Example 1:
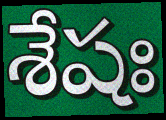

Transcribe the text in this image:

శేషః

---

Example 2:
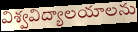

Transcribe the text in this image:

విశ్వవిద్యాలయాలను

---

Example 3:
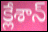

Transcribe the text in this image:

క్లేశాన్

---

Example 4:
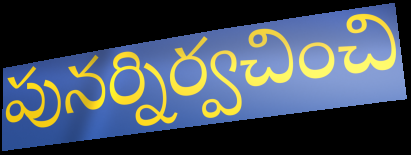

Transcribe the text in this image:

పునర్నిర్వచించి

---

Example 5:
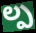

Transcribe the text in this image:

ల్ప